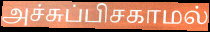
அச்சுப்பிசகாமல்